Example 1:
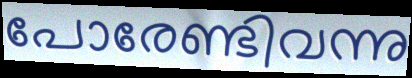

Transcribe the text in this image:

പോരേണ്ടിവന്നു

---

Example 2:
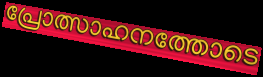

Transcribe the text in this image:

പ്രോത്സാഹനത്തോടെ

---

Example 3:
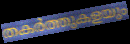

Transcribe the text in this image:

തകർത്തുകളയും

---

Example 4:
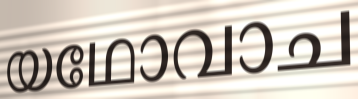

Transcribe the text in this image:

യഥോവാച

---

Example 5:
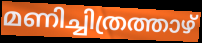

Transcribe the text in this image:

മണിച്ചിത്രത്താഴ്